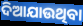
ଦିଆଯାଉଥିବା